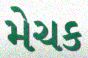
મેચક